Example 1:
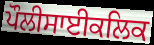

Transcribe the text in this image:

ਪੌਲੀਸਾਈਕਲਿਕ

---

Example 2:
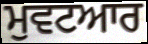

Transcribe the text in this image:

ਮੁਵਟਆਰ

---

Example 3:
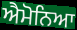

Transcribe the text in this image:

ਐਮੋਨਿਆ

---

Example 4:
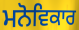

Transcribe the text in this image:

ਮਨੋਵਿਕਾਰ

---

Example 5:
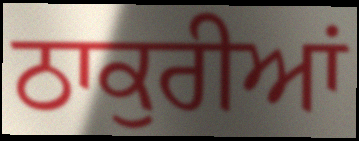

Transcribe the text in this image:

ਠਾਕੁਰੀਆਂ